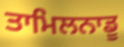
ਤਾਮਿਲਨਾਡੂ